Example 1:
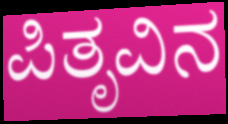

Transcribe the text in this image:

ಪಿತೃವಿನ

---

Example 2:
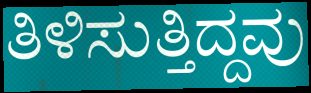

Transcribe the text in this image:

ತಿಳಿಸುತ್ತಿದ್ದವು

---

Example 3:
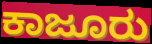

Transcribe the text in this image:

ಕಾಜೂರು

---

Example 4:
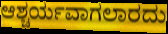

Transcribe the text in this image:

ಆಶ್ಚರ್ಯವಾಗಲಾರದು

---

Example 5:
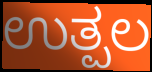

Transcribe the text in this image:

ಉತ್ಪಲ